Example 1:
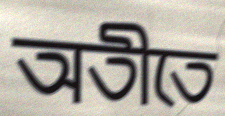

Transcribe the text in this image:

অতীতে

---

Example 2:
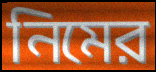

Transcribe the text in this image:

নিমের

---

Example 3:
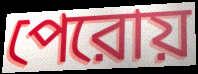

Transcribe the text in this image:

পেরোয়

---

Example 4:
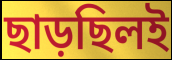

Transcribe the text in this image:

ছাড়ছিলই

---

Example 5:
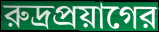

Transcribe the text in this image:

রুদ্রপ্রয়াগের